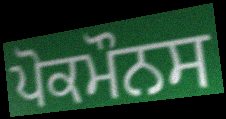
ਪੋਕਮੌਨਸ